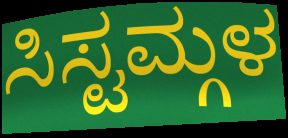
ಸಿಸ್ಟಮ್ಗಳ